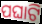
ପଘାଟି